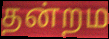
தன்றம